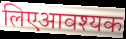
लिएआवश्यक